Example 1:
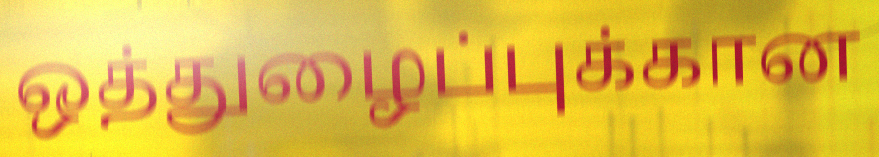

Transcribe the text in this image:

ஒத்துழைப்புக்கான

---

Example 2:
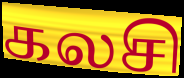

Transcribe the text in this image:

கலசி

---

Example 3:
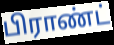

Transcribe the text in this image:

பிராண்ட்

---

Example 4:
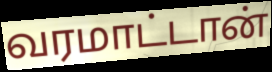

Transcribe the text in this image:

வரமாட்டான்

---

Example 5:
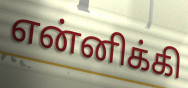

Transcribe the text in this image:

என்னிக்கி